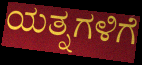
ಯತ್ನಗಳಿಗೆ